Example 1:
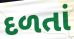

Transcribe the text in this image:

દળતાં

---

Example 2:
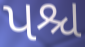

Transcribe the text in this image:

પશ્ચ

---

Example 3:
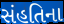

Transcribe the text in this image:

સંહતિના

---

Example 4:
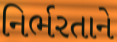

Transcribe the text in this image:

નિર્ભરતાને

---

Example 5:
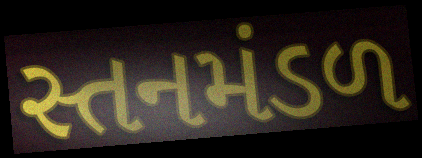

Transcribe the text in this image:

સ્તનમંડળ